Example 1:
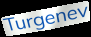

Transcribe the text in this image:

Turgenev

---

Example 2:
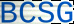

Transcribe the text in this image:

BCSG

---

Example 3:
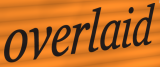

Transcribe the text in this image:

overlaid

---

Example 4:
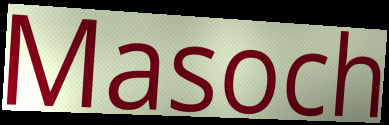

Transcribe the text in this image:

Masoch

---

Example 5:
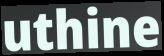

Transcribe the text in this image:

uthine